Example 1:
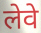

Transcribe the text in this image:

लेवे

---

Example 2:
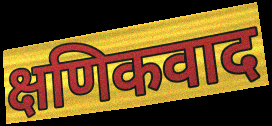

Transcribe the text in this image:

क्षणिकवाद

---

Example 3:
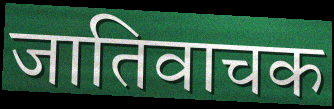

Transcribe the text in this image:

जातिवाचक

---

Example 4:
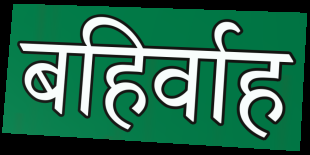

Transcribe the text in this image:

बहिर्वाह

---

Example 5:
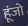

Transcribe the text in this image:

हूंजो